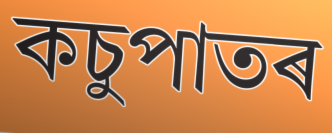
কচুপাতৰ